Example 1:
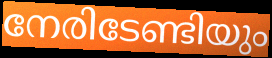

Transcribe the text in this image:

നേരിടേണ്ടിയും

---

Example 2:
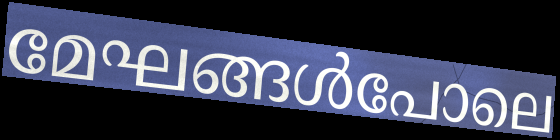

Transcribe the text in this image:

മേഘങ്ങൾപോലെ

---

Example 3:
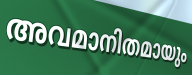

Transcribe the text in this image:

അവമാനിതമായും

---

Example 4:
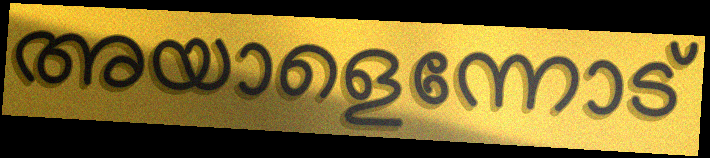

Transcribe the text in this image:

അയാളെന്നോട്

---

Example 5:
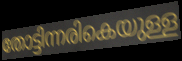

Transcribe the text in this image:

തോട്ടിന്നരികെയുള്ള